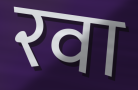
रवा